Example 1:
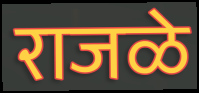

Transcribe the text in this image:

राजळे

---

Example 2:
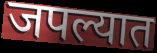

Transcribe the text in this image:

जपल्यात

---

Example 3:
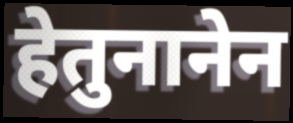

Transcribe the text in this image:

हेतुनानेन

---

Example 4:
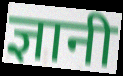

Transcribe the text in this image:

ज्ञानी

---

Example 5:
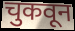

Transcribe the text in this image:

चुकवून